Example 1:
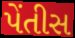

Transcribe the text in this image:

પેંતીસ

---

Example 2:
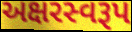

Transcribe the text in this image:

અક્ષરસ્વરૂપ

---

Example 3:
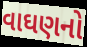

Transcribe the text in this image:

વાઘણનો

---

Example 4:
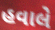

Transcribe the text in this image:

હવાલે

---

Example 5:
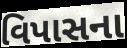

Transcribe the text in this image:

વિપાસના